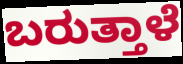
ಬರುತ್ತಾಳೆ